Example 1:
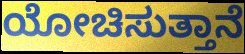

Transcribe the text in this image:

ಯೋಚಿಸುತ್ತಾನೆ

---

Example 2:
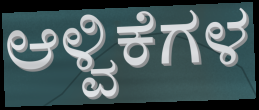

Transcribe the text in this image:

ಆಳ್ವಿಕೆಗಳ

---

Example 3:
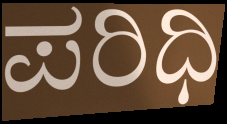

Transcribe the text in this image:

ಪರಿಧಿ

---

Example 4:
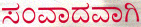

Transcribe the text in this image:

ಸಂವಾದವಾಗಿ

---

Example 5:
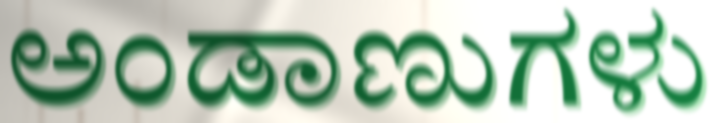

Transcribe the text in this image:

ಅಂಡಾಣುಗಳು